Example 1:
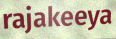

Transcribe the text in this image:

rajakeeya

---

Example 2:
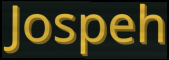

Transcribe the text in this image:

Jospeh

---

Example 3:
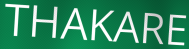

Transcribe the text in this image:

THAKARE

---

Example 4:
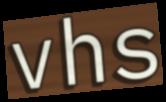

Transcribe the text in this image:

vhs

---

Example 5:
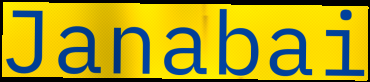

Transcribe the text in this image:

Janabai